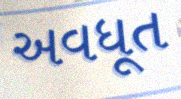
અવધૂત